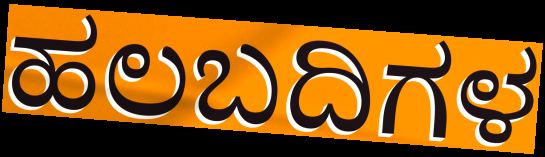
ಹಲಬದಿಗಳ